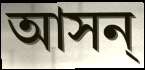
আসন্